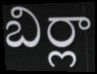
బిర్లా